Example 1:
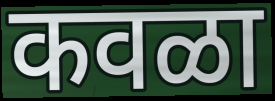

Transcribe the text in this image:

कवळा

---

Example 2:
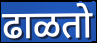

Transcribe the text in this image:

ढाळतो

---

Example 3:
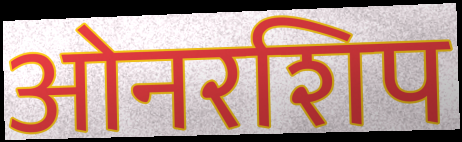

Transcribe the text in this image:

ओनरशिप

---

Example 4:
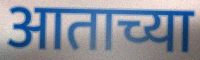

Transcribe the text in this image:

आताच्या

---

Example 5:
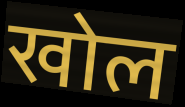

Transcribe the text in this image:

खोल